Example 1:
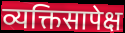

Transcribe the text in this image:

व्यक्तिसापेक्ष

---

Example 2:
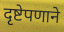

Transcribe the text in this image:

दृष्टेपणाने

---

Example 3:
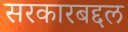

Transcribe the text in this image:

सरकारबद्दल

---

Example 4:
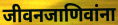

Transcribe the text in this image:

जीवनजाणिवांना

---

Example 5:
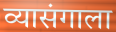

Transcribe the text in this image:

व्यासंगाला